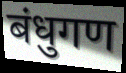
बंधुगण